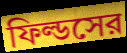
ফিল্ডসের